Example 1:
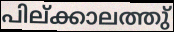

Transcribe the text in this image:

പില്ക്കാലത്തു്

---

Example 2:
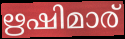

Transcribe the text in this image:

ഋഷിമാര്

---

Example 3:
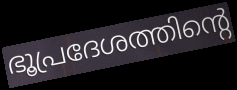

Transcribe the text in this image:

ഭൂപ്രദേശത്തിന്റെ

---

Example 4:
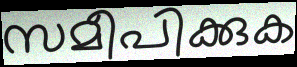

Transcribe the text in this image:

സമീപിക്കുക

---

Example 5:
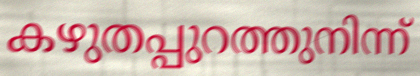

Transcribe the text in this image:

കഴുതപ്പുറത്തുനിന്ന്